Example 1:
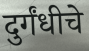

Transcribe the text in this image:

दुर्गंधीचे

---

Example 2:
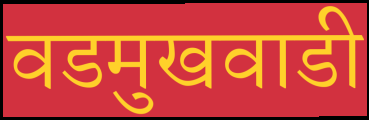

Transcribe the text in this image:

वडमुखवाडी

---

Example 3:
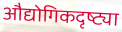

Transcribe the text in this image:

औद्योगिकदृष्ट्या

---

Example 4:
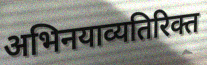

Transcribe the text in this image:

अभिनयाव्यतिरिक्त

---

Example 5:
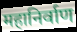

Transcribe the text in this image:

महानिर्वाण